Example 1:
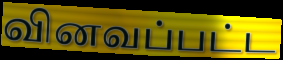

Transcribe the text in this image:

வினவப்பட்ட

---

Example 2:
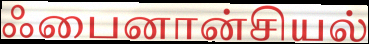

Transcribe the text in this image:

ஃபைனான்சியல்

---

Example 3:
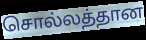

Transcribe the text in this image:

சொல்லத்தான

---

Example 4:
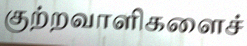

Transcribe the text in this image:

குற்றவாளிகளைச்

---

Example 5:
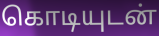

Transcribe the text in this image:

கொடியுடன்